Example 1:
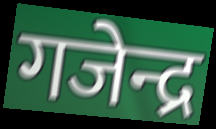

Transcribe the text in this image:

गजेन्‍द्र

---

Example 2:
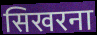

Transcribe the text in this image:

सिखरना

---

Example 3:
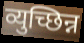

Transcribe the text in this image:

व्युच्छिन्न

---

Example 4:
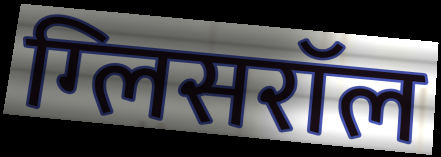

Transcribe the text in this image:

ग्लिसरॉल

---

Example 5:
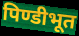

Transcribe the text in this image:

पिण्डीभूत